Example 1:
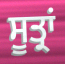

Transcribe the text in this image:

ਸੂਤ੍ਰਾਂ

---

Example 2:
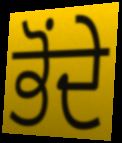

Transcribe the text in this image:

ਭੋਂਦੇ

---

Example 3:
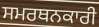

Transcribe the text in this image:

ਸਮਰਥਨਕਾਰੀ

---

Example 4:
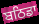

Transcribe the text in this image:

ਬਠਿਡਾ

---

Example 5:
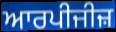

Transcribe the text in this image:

ਆਰਪੀਜੀਜ਼